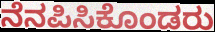
ನೆನಪಿಸಿಕೊಂಡರು